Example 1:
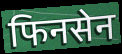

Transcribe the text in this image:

फिनसेन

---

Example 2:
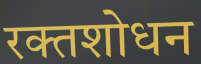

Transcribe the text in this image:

रक्तशोधन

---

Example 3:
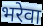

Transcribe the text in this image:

भरेवा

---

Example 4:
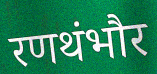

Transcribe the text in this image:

रणथंभौर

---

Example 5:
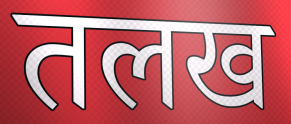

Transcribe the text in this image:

तलख